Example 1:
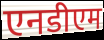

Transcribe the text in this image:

एनडीएम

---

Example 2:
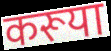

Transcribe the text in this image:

करूया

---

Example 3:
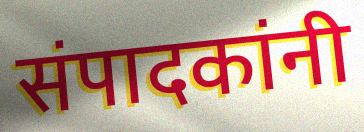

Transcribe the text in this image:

संपादकांनी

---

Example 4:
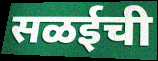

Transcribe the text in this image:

सळईची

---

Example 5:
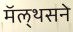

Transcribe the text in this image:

मॅल्थसने